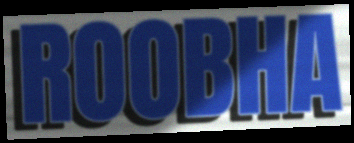
ROOBHA